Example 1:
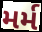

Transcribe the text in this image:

મર્મ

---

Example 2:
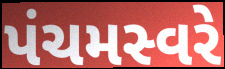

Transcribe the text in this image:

પંચમસ્વરે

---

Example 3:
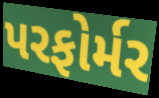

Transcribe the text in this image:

પરફોર્મર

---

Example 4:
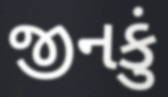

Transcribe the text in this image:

જીનકું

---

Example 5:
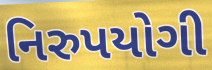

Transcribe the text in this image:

નિરુપયોગી